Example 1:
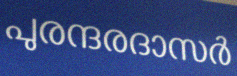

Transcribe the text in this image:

പുരന്ദരദാസർ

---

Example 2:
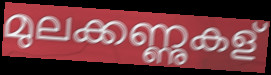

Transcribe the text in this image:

മുലക്കണ്ണുകള്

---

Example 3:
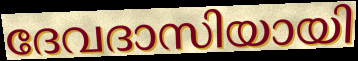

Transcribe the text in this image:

ദേവദാസിയായി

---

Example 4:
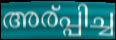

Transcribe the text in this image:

അര്പ്പിച്ച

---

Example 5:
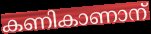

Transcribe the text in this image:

കണികാണാന്